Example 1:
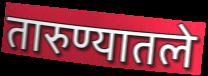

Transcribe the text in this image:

तारुण्यातले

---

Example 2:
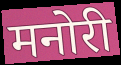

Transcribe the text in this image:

मनोरी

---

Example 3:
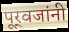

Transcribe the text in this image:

पूर्वजांनी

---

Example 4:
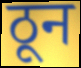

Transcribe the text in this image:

ठून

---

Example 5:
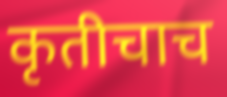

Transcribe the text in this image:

कृतीचाच